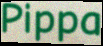
Pippa